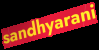
sandhyarani